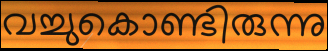
വച്ചുകൊണ്ടിരുന്നു